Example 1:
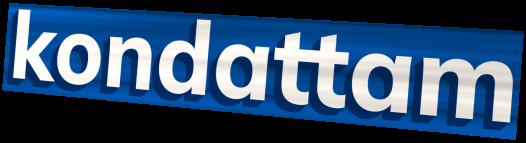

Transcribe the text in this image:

kondattam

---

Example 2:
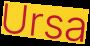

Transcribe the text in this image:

Ursa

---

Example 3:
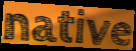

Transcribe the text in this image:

native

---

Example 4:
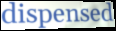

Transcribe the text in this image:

dispensed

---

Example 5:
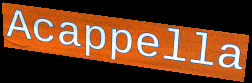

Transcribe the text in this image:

Acappella